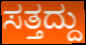
ಸತ್ತದ್ದು